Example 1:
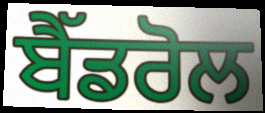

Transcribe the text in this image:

ਬੈੱਡਰੋਲ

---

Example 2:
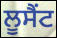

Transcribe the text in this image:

ਲੂਸੈਂਟ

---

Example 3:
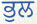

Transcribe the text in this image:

ਭੁਲ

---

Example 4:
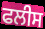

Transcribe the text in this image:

ਫਲੀਸ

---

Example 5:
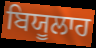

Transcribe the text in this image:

ਬਿਯੂਲਾਹ